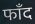
फाँद